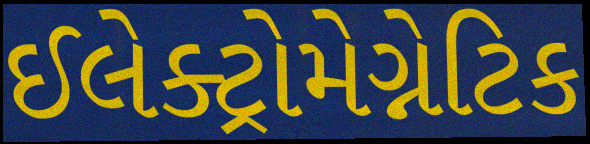
ઈલેક્ટ્રોમેગ્નેટિક